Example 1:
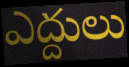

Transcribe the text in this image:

ఎద్దులు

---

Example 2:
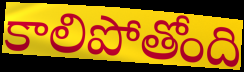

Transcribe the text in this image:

కాలిపోతోంది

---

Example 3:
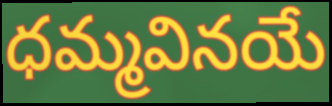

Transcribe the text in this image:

ధమ్మవినయే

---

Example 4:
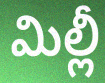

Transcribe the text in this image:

మిల్లీ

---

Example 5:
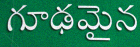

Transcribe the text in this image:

గూఢమైన